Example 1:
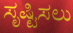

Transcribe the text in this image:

ಸೃಷ್ಟಿಸಲು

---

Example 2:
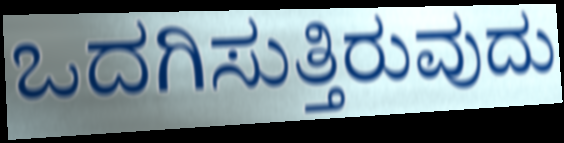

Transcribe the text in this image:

ಒದಗಿಸುತ್ತಿರುವುದು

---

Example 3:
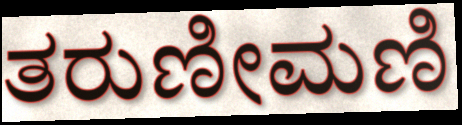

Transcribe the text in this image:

ತರುಣೀಮಣಿ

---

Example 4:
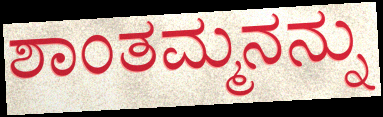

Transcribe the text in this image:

ಶಾಂತಮ್ಮನನ್ನು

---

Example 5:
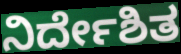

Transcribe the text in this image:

ನಿರ್ದೇಶಿತ